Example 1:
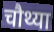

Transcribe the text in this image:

चौथ्या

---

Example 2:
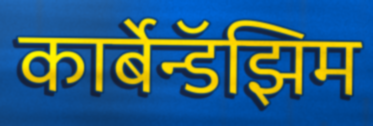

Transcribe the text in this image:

कार्बेन्डॅझिम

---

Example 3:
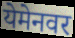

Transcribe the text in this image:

येमेनवर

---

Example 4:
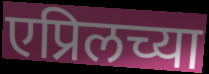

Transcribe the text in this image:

एप्रिलच्या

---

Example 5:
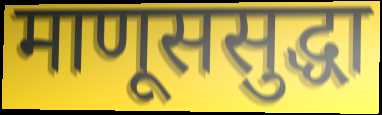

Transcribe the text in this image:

माणूससुद्धा